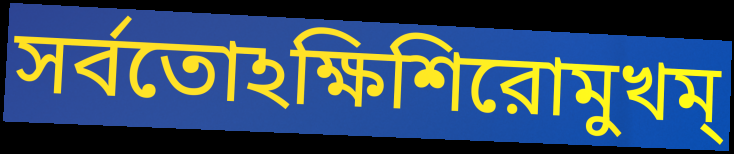
সর্বতোঽক্ষিশিরোমুখম্